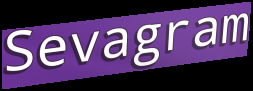
Sevagram